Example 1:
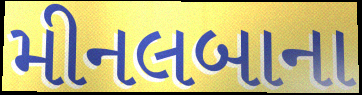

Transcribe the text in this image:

મીનલબાના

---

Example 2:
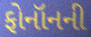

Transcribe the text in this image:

ફોનૉનની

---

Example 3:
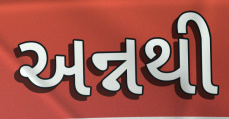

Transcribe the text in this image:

અન્નથી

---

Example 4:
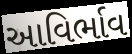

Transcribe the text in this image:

આવિર્ભાવ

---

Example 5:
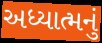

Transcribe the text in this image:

અધ્યાત્મનું